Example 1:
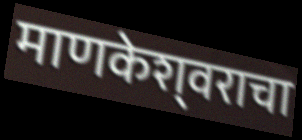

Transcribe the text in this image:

माणकेश्वराचा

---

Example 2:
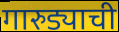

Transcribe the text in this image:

गारुड्याची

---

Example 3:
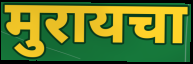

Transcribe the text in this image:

मुरायचा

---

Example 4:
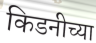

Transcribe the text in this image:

किडनीच्या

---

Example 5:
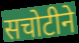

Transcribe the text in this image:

सचोटीने